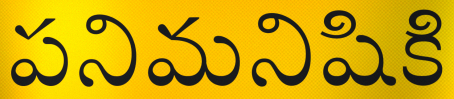
పనిమనిషికి